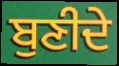
ਬੁਣੀਦੇ